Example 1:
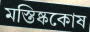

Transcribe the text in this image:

মস্তিষ্ককোষ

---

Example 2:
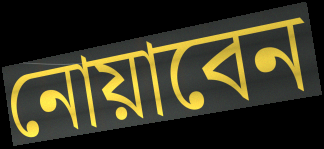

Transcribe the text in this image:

নোয়াবেন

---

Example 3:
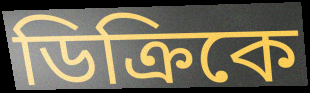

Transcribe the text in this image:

ডিক্রিকে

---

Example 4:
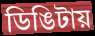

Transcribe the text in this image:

ডিঙিটায়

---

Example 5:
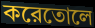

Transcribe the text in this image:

করেতোলে